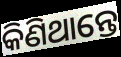
କିଣିଥାନ୍ତେ